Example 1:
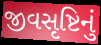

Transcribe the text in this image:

જીવસૃષ્ટિનું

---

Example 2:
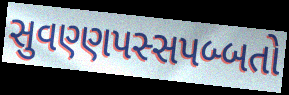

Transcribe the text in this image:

સુવણ્ણપસ્સપબ્બતો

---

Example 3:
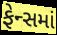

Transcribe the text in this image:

ફેન્સમાં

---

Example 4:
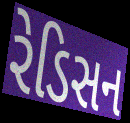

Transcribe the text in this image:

રેડિસન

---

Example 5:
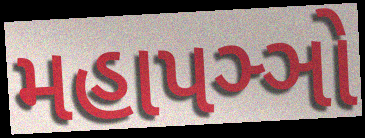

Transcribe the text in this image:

મહાપઞ્ઞો